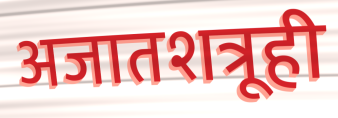
अजातशत्रूही